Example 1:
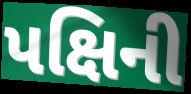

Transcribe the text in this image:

પક્ષિની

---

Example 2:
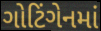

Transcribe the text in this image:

ગોટિંગેનમાં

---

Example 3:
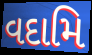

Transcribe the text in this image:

વદામિ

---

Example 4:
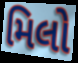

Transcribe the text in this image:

મિલો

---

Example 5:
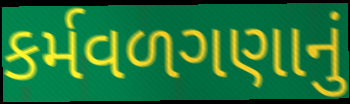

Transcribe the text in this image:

કર્મવળગણાનું